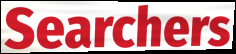
Searchers